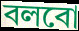
বলবো